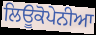
ਲਿਊਕੋਪੇਨੀਆ